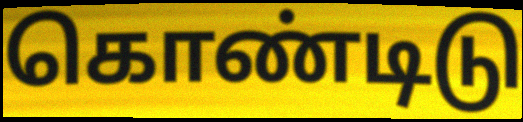
கொண்டிடு